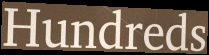
Hundreds